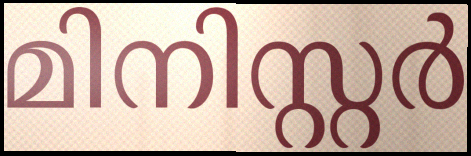
മിനിസ്റ്റർ